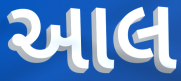
આલ